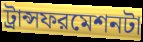
ট্রান্সফরমেশনটা